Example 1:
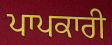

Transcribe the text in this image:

ਪਾਪਕਾਰੀ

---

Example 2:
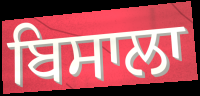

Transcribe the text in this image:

ਬਿਸਾਲਾ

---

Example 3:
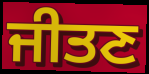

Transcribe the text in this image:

ਜੀਤਣ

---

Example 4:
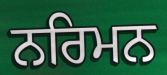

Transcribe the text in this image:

ਨਰਿਮਨ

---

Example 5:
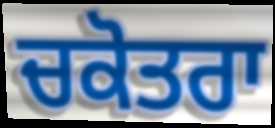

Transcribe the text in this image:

ਚਕੋਤਰਾ